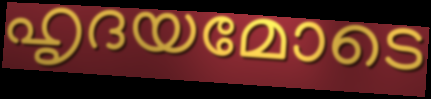
ഹൃദയമോടെ